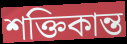
শক্তিকান্ত